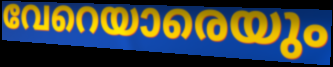
വേറെയാരെയും